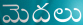
మెదలు